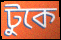
টুকে